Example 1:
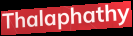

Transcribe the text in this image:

Thalaphathy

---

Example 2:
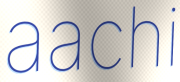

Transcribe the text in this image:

aachi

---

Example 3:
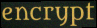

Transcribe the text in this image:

encrypt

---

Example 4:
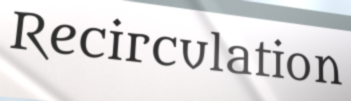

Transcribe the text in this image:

Recirculation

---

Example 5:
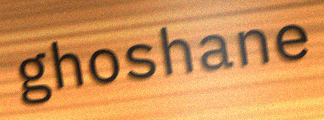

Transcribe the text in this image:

ghoshane